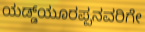
ಯಡ್ಡ್‌ಯೂರಪ್ಪನವರಿಗೇ